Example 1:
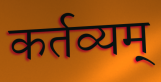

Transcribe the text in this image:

कर्तव्यम्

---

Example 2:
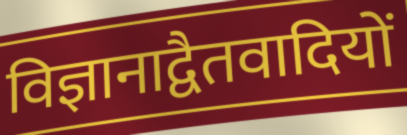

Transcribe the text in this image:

विज्ञानाद्वैतवादियों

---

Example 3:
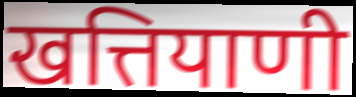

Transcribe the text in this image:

खत्तियाणी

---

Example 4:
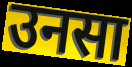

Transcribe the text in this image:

उनसा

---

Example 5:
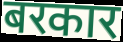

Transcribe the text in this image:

बरकार